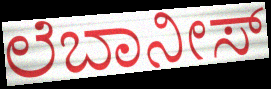
ಲೆಬಾನೀಸ್